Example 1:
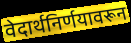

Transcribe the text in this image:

वेदार्थनिर्णयावरून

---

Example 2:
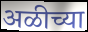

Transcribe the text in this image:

अळीच्या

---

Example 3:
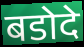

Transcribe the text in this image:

बडोदे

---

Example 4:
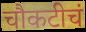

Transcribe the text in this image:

चौकटीचं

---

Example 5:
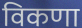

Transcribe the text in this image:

विकणा